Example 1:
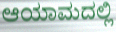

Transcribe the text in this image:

ಆಯಾಮದಲ್ಲಿ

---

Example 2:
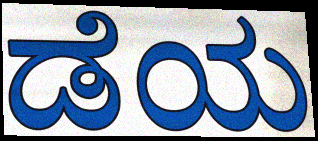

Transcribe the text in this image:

ಡೆಯ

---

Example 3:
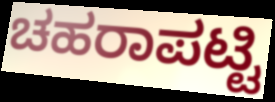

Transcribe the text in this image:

ಚಹರಾಪಟ್ಟಿ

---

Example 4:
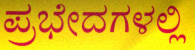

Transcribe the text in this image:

ಪ್ರಭೇದಗಳಲ್ಲಿ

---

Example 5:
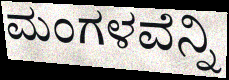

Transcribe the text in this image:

ಮಂಗಳವೆನ್ನಿ